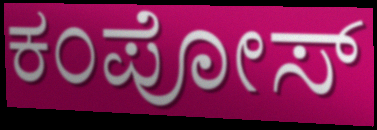
ಕಂಪೋಸ್